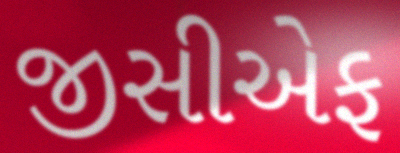
જીસીએફ